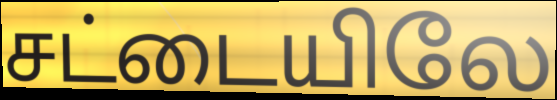
சட்டையிலே